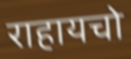
राहायचो